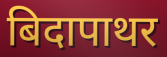
बिदापाथर